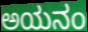
ಅಯನಂ